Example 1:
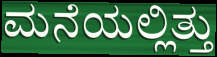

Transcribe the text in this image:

ಮನೆಯಲ್ಲಿತ್ತು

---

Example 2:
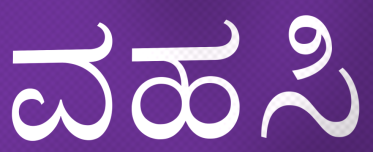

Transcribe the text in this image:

ವಹಸಿ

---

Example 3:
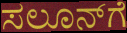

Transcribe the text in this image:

ಸಲೂನ್‍ಗೆ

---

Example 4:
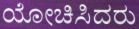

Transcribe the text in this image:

ಯೋಚಿಸಿದರು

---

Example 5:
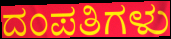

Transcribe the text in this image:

ದಂಪತಿಗಳು